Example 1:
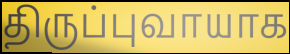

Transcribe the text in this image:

திருப்புவாயாக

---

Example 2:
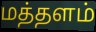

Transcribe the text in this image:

மத்தளம்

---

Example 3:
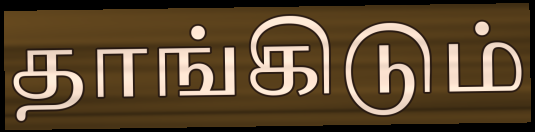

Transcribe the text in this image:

தாங்கிடும்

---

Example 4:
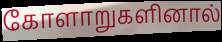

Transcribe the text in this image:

கோளாறுகளினால்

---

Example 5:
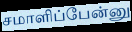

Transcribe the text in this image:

சமாளிப்பேன்னு